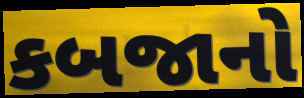
કબજાનો